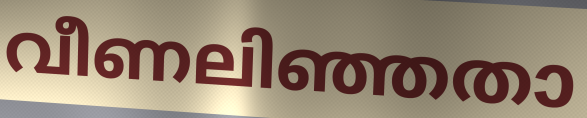
വീണലിഞ്ഞതാ